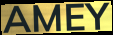
AMEY